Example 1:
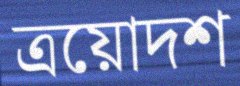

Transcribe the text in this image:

ত্ৰয়োদশ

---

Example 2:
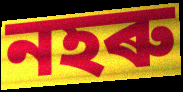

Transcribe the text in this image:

নহৰু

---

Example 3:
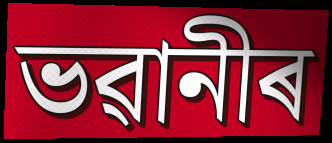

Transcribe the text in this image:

ভৱানীৰ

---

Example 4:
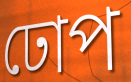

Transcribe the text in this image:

ঢোপ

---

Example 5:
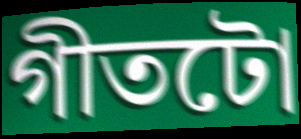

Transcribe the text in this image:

গীতটো